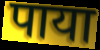
पाया